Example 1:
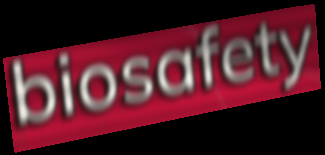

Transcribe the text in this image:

biosafety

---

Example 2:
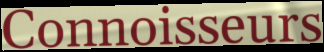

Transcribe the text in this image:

Connoisseurs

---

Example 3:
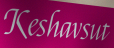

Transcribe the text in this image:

Keshavsut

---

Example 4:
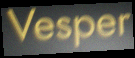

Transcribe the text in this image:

Vesper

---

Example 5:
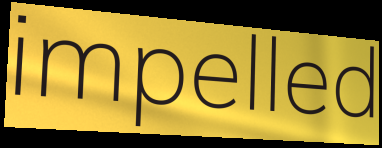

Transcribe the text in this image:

impelled